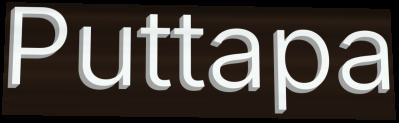
Puttapa